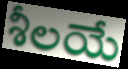
శీలయే